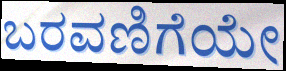
ಬರವಣಿಗೆಯೇ